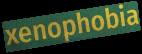
xenophobia